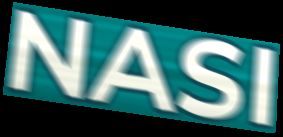
NASI